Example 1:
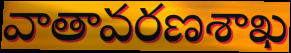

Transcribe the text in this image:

వాతావరణశాఖ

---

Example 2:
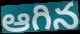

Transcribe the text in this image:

ఆగిన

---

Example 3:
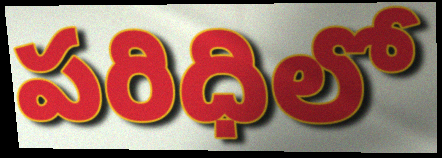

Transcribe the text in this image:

పరిధిలో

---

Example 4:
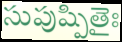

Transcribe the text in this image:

సుపుష్పితైః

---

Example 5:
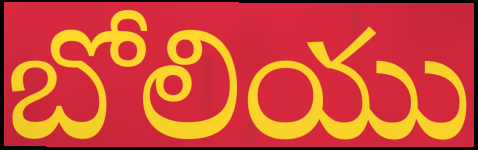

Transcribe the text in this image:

బోలియు